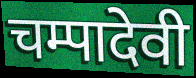
चम्पादेवी